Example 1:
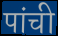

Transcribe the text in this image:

पांची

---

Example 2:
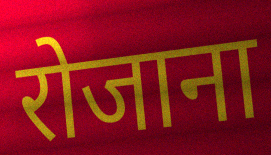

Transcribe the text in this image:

रोजाना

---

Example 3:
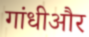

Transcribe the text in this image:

गांधीऔर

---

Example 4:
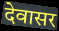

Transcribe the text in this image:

देवासर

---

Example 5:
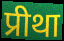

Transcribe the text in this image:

प्रीथा